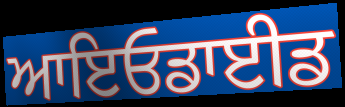
ਆਇਓਡਾਈਡ